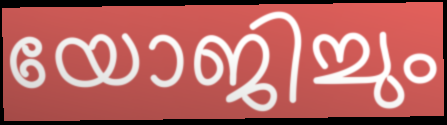
യോജിച്ചും